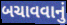
બચાવવાનું